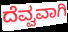
ದೆವ್ವವಾಗಿ